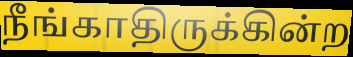
நீங்காதிருக்கின்ற